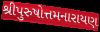
શ્રીપુરુષોત્તમનારાયણ